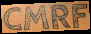
CMRF